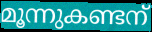
മൂന്നുകണ്ടന്